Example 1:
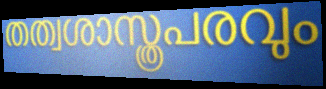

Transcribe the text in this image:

തത്വശാസ്ത്രപരവും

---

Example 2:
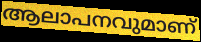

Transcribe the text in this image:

ആലാപനവുമാണ്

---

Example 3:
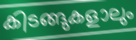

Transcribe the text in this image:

കിടങ്ങുകളാലും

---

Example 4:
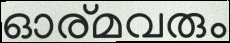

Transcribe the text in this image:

ഓര്മവരും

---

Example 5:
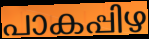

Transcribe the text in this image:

പാകപ്പിഴ